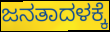
ಜನತಾದಳಕ್ಕೆ